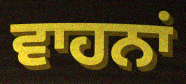
ਵਾਹਨਾਂ